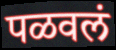
पळवलं